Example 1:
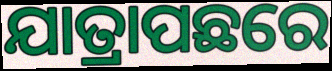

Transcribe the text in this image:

ଯାତ୍ରାପଛରେ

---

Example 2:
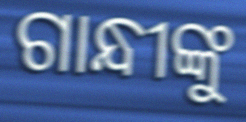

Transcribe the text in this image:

ଗାନ୍ଧୀଙ୍କୁ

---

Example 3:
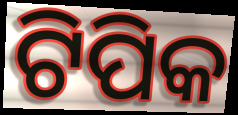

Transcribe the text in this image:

ଟିପିକ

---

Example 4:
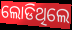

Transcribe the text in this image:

ଲୋଡିଥିଲେ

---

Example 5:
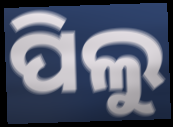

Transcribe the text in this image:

ପିଲୁ